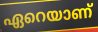
ഏറെയാണ്